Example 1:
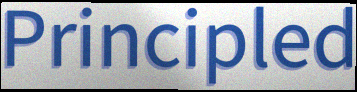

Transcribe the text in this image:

Principled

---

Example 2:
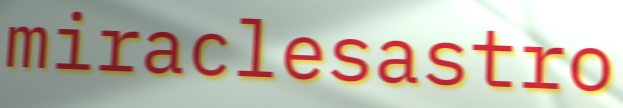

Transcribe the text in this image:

miraclesastro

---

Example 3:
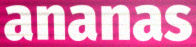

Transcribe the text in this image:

ananas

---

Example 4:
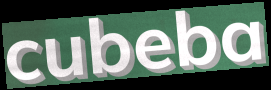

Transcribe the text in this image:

cubeba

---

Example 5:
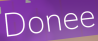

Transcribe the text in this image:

Donee